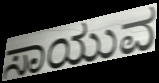
ಸಾಯುವ